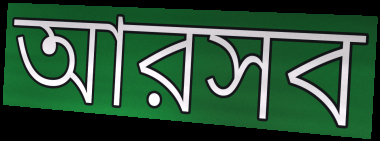
আরসব